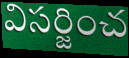
విసర్జించ